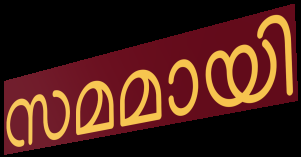
സമമായി